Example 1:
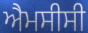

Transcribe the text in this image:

ਐਮਸੀਸੀ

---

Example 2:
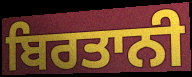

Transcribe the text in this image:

ਬਿਰਤਾਨੀ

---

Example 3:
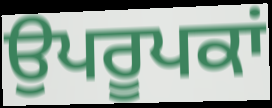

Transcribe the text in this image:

ਉਪਰੂਪਕਾਂ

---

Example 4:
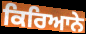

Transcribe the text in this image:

ਕਿਰਿਆਨੇ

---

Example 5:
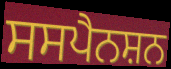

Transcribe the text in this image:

ਸਸਪੈਨਸ਼ਨ